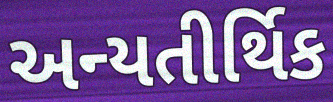
અન્યતીર્થિક